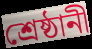
শ্রেষ্ঠানী